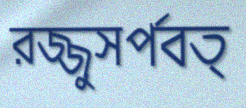
রজ্জুসর্পবত্